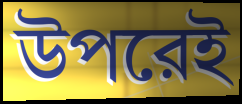
উপরেই